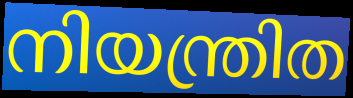
നിയന്ത്രിത